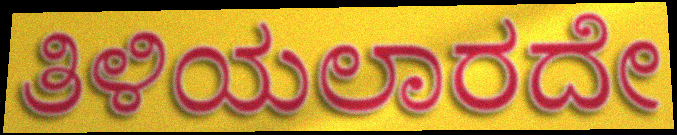
ತಿಳಿಯಲಾರದೇ